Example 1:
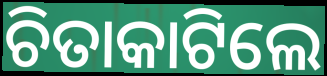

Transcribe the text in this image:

ଚିତାକାଟିଲେ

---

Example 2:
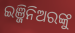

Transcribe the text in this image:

ଇଞ୍ଜିନିଅରଙ୍କୁ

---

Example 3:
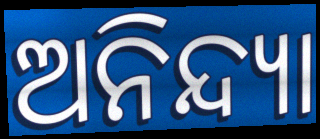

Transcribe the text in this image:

ଅନିନ୍ଦ୍ୟା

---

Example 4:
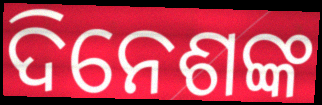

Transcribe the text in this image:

ଦିନେଶଙ୍କ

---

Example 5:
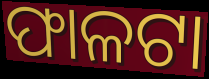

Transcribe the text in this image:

ଫାଳଟା